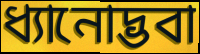
ধ্যানোদ্ভবা